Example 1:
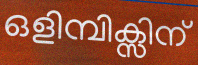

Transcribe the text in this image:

ഒളിമ്പിക്സിന്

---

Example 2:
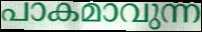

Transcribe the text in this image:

പാകമാവുന്ന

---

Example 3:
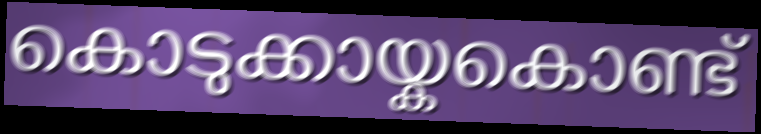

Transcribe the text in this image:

കൊടുക്കായ്കകൊണ്ട്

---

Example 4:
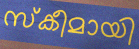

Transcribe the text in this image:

സ്കീമായി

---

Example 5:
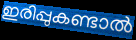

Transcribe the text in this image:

ഇരിപ്പുകണ്ടാൽ